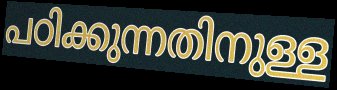
പഠിക്കുന്നതിനുള്ള